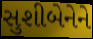
સુશીબેનેને